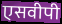
एसवीपी